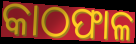
କାଠଫାଳ